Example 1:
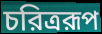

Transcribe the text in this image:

চরিত্ররূপ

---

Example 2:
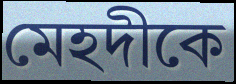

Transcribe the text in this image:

মেহদীকে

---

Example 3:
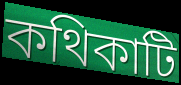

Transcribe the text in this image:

কথিকাটি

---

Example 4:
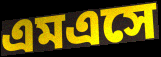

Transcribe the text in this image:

এমএসে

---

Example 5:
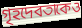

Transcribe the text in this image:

গৃহদেবতাকেও